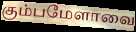
கும்பமேளாவை